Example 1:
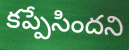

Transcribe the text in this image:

కప్పేసిందని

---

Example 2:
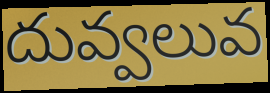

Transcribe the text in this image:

దువ్వలువ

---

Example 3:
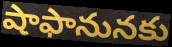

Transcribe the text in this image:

షాఫానునకు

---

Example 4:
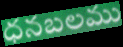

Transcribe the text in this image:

ధనబలము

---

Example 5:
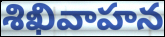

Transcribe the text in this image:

శిఖివాహన